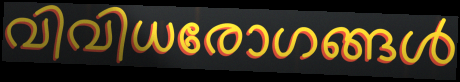
വിവിധരോഗങ്ങൾ